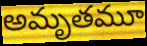
అమృతమూ